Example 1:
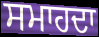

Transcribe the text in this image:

ਸਮਾਹਦਾ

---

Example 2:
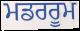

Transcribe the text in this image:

ਮਡਰਰੂਮ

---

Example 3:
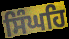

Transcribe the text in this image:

ਸਿੰਘਹਿ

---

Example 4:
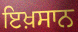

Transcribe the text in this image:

ਇਖ਼ਸਾਨ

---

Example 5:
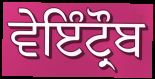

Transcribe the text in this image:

ਵੇਇੰਟ੍ਰੌਬ